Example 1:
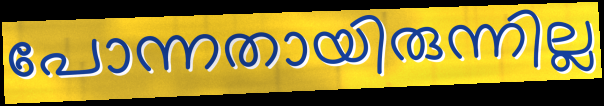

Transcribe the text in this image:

പോന്നതായിരുന്നില്ല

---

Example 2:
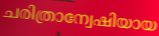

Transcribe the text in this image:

ചരിത്രാന്വേഷിയായ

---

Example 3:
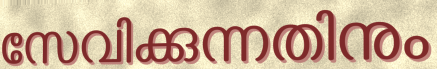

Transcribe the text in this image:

സേവിക്കുന്നതിനും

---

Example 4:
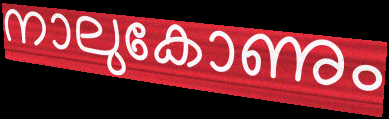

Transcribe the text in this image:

നാലുകോണും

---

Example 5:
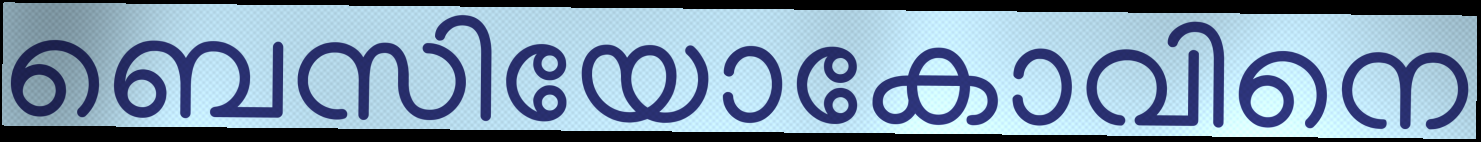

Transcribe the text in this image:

ബെസിയോകോവിനെ